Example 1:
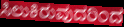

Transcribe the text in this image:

ಸಿಲುಕಿರುವುದರಿಂದ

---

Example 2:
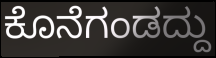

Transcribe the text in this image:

ಕೊನೆಗಂಡದ್ದು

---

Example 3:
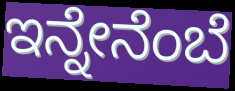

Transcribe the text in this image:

ಇನ್ನೇನೆಂಬೆ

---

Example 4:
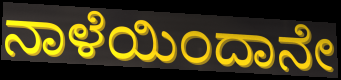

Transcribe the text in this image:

ನಾಳೆಯಿಂದಾನೇ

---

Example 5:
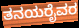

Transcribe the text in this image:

ತನಯರೈವರ